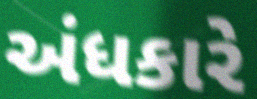
અંધકારે